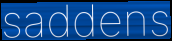
saddens